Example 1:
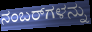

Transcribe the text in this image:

ನಂಬರ್‌ಗಳನ್ನು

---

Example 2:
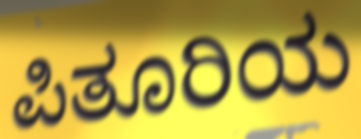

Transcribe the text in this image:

ಪಿತೂರಿಯ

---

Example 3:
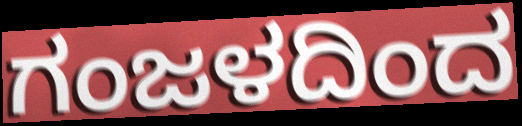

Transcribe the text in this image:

ಗಂಜಳದಿಂದ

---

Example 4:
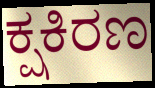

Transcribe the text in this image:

ಕ್ಷಕಿರಣ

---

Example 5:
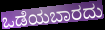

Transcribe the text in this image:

ಒಡೆಯಬಾರದು